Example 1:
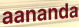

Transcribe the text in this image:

aananda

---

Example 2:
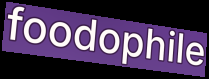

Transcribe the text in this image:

foodophile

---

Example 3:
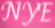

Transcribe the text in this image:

NYE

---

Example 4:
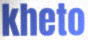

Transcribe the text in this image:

kheto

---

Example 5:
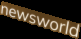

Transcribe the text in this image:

newsworld